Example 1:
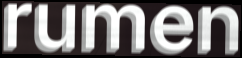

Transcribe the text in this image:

rumen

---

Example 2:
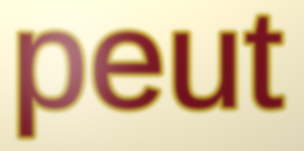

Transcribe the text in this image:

peut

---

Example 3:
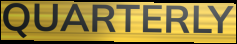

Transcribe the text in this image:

QUARTERLY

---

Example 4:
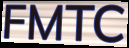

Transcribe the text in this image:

FMTC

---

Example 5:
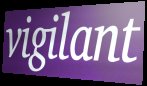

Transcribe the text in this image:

vigilant